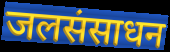
जलसंसाधन